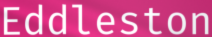
Eddleston